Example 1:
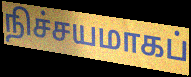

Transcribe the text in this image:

நிச்சயமாகப்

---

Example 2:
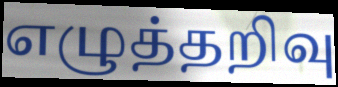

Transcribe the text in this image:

எழுத்தறிவு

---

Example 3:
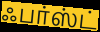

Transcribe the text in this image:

ஃபர்ஸ்ட்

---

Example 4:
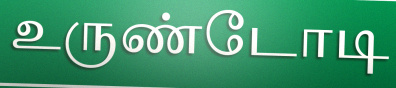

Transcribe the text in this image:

உருண்டோடி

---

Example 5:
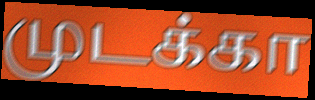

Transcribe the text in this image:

முடக்கா